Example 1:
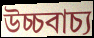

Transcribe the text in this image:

উচ্চবাচ্য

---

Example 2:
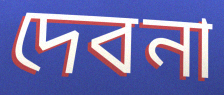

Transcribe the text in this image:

দেবনা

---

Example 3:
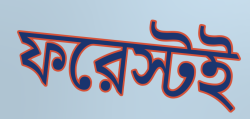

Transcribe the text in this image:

ফরেস্টই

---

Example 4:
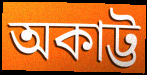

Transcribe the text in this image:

অকাট্ট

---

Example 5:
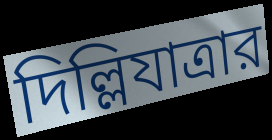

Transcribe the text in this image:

দিল্লিযাত্রার